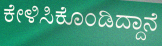
ಕೇಳಿಸಿಕೊಂಡಿದ್ದಾನೆ